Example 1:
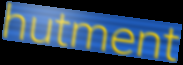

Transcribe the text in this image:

hutment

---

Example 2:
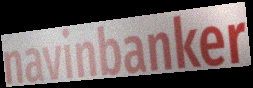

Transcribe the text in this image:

navinbanker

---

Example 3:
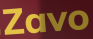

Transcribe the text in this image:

Zavo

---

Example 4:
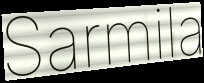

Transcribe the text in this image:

Sarmila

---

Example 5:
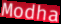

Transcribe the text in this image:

Modha